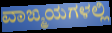
ವಾಙ್ಮಯಗಳಲ್ಲಿ